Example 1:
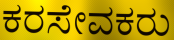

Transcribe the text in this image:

ಕರಸೇವಕರು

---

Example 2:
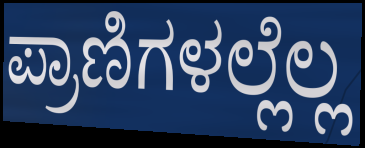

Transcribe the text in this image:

ಪ್ರಾಣಿಗಳಲ್ಲೆಲ್ಲ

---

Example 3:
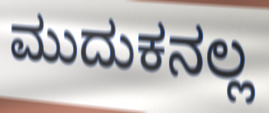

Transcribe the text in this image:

ಮುದುಕನಲ್ಲ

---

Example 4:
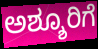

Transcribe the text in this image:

ಅಶ್ಶೂರಿಗೆ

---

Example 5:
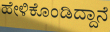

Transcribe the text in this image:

ಹೇಳಿಕೊಂಡಿದ್ದಾನೆ